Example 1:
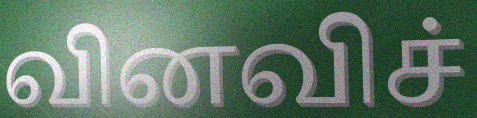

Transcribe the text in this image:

வினவிச்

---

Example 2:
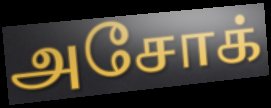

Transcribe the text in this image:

அசோக்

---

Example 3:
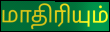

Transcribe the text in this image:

மாதிரியும்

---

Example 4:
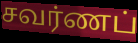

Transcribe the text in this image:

சவர்ணப்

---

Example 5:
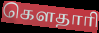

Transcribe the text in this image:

கௌதாரி